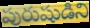
పురుషుడిని